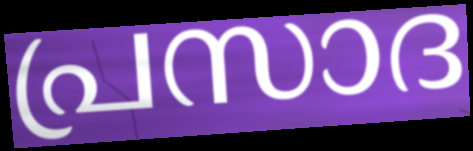
പ്രസാദ